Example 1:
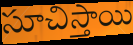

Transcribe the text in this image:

సూచిస్తాయి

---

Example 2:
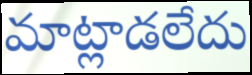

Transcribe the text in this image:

మాట్లాడలేదు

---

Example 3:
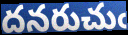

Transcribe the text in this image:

దనరుచుఁ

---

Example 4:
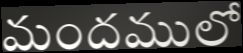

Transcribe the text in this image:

మందములో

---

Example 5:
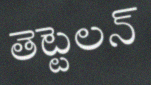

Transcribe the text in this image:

తెట్టెలన్